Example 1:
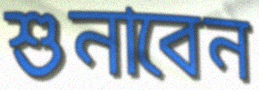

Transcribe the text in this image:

শুনাবেন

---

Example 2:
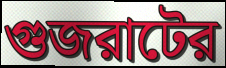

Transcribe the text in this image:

গুজরাটের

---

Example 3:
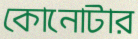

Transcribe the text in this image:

কোনোটার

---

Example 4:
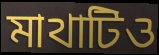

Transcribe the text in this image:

মাথাটিও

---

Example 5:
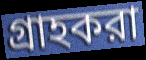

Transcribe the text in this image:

গ্রাহকরা